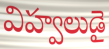
విహ్వలుడై